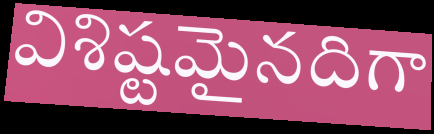
విశిష్టమైనదిగా